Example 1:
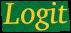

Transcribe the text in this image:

Logit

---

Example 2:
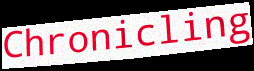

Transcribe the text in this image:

Chronicling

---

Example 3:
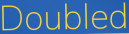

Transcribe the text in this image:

Doubled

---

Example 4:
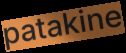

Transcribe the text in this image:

patakine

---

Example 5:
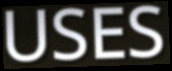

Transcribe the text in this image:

USES